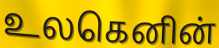
உலகெனின்